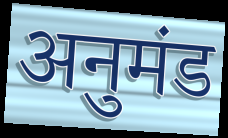
अनुमंड